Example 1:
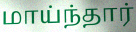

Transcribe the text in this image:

மாய்ந்தார்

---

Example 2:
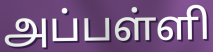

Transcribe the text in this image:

அப்பள்ளி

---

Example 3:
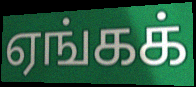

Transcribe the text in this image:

ஏங்கக்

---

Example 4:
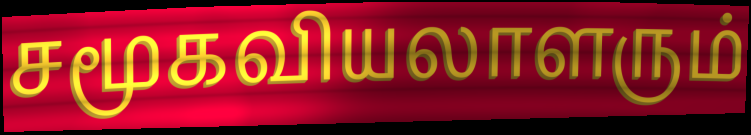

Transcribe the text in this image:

சமூகவியலாளரும்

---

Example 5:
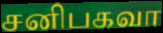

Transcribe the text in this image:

சனிபகவா